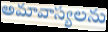
అమావాస్యలను